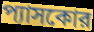
প্যাসকোর